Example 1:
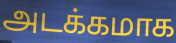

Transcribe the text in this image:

அடக்கமாக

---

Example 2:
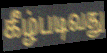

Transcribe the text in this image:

கீழ்படிவது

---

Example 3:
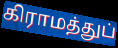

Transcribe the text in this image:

கிராமத்துப்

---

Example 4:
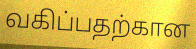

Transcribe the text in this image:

வகிப்பதற்கான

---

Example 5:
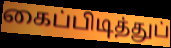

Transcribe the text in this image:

கைப்பிடித்துப்